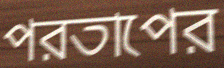
পরতাপের